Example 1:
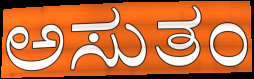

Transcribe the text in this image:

ಅಸುತಂ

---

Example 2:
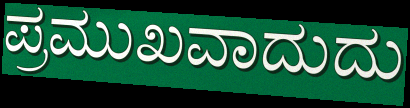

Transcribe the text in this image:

ಪ್ರಮುಖವಾದುದು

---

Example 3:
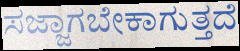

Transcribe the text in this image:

ಸಜ್ಜಾಗಬೇಕಾಗುತ್ತದೆ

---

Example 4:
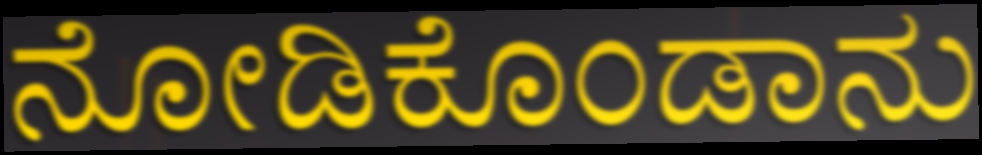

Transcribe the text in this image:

ನೋಡಿಕೊಂಡಾನು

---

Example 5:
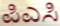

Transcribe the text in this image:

ಪಿಎಸಿ